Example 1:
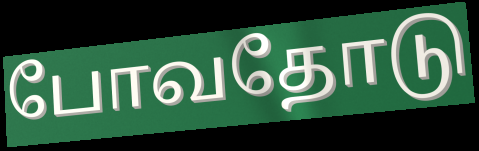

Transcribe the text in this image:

போவதோடு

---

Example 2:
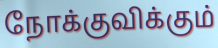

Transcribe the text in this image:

நோக்குவிக்கும்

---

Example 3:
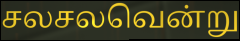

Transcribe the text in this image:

சலசலவென்று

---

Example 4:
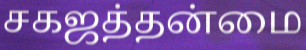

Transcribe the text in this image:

சகஜத்தன்மை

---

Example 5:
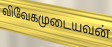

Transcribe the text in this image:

விவேகமுடையவன்